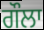
ਗੌਲਾ